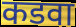
कडवा